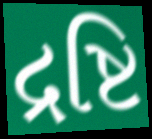
દ્રષ્ટિ